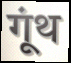
गूंथ